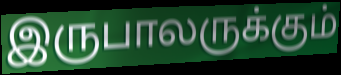
இருபாலருக்கும்